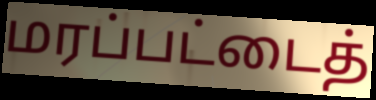
மரப்பட்டைத்